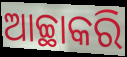
ଆଚ୍ଛାକରି